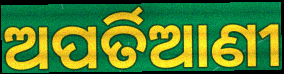
ଅପର୍ତିଆଣୀ